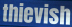
thievish